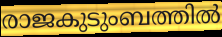
രാജകുടുംബത്തിൽ